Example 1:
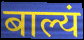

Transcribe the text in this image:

बाल्यं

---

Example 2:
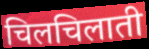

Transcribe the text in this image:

चिलचिलाती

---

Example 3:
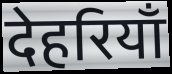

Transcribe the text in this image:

देहरियाँ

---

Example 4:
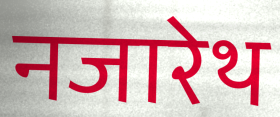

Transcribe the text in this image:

नजारेथ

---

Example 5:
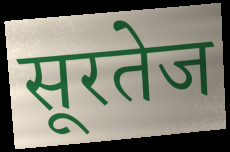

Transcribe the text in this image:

सूरतेज